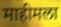
माहीमला